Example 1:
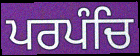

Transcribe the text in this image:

ਪਰਪੰਚਿ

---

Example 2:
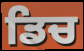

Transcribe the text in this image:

ਡਿਚ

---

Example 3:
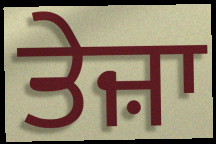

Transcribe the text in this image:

ਤੇਜ਼ਾ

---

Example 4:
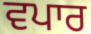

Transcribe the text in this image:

ਵਪਾਰ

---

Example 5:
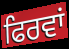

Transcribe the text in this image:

ਫਿਰਵਾਂ